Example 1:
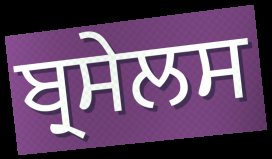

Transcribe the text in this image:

ਬ੍ਰਸੇਲਸ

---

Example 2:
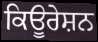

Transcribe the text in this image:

ਕਿਊਰੇਸ਼ਨ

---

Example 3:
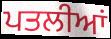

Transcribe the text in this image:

ਪਤਲੀਆਂ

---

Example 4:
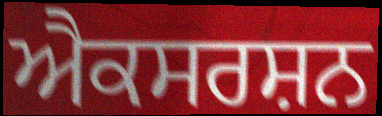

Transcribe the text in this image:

ਐਕਸਰਸ਼ਨ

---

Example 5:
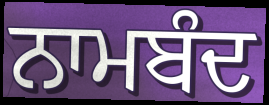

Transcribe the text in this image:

ਨਾਮਬੰਦ